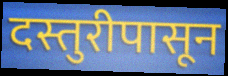
दस्तुरीपासून